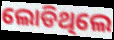
ଲୋଡିଥିଲେ